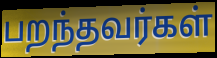
பறந்தவர்கள்